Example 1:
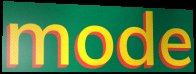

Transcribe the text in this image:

mode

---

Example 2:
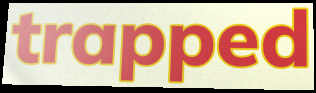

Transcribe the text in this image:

trapped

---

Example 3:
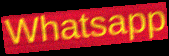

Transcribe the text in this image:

Whatsapp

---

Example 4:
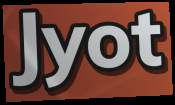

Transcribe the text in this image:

Jyot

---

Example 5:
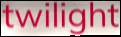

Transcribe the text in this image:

twilight